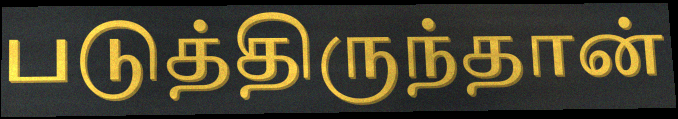
படுத்திருந்தான்